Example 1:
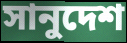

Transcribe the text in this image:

সানুদেশ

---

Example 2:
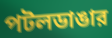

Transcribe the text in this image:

পটলডাঙার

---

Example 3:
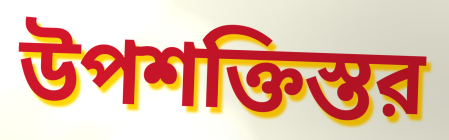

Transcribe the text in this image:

উপশক্তিস্তর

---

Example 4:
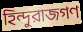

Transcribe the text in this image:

হিন্দুরাজগণ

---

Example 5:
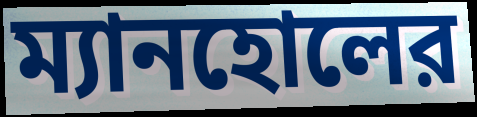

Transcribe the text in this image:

ম্যানহোলের